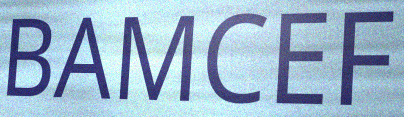
BAMCEF